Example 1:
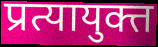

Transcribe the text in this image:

प्रत्यायुक्त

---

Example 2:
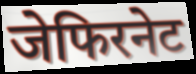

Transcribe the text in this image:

जेफिरनेट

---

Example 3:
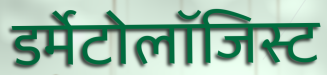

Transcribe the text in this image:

डर्मेटोलॉजिस्ट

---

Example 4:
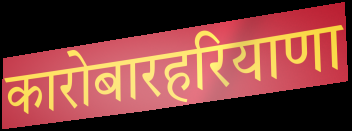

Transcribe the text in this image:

कारोबारहरियाणा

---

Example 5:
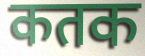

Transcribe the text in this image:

कतक